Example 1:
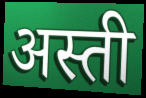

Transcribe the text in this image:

अस्ती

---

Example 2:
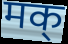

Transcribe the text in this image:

मक्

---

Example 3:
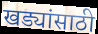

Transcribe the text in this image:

खड्यांसाठी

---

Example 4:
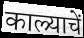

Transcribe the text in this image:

काल्याचें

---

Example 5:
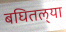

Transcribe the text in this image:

बघितल्या